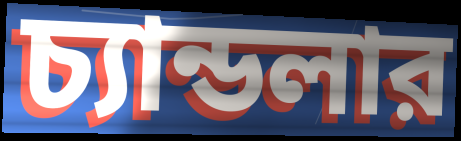
চ্যান্ডলার